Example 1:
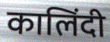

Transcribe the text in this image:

कालिंदी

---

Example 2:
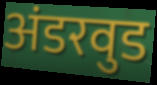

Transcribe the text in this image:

अंडरवुड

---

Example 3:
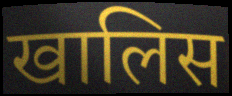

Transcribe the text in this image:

खालिस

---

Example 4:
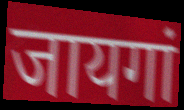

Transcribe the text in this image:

जायगां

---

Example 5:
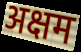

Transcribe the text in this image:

अक्षम